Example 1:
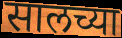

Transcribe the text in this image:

सालच्या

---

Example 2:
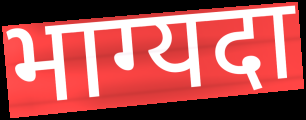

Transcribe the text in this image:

भाग्यदा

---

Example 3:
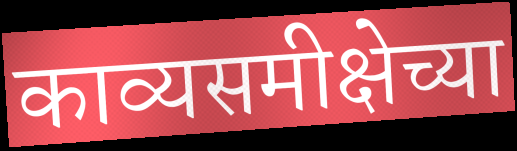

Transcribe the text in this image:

काव्यसमीक्षेच्या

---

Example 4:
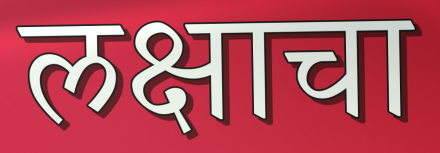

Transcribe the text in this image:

लक्षाचा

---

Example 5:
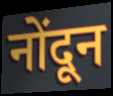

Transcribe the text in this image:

नोंदून